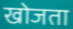
खोजता